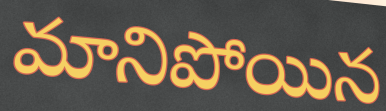
మానిపోయిన